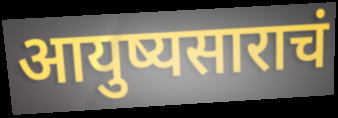
आयुष्यसाराचं